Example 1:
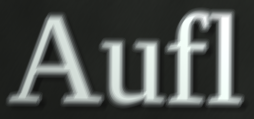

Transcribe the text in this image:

Aufl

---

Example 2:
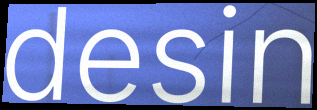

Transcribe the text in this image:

desin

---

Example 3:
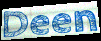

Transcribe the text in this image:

Deen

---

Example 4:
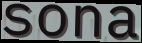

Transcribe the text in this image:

sona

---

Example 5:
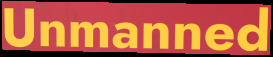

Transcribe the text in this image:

Unmanned